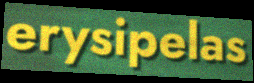
erysipelas